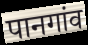
पानगांव